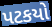
પટકયો